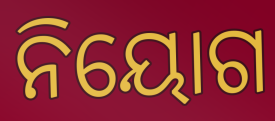
ନିୟୋଗ